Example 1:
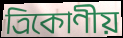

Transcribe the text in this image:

ত্ৰিকোণীয়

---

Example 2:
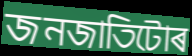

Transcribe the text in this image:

জনজাতিটোৰ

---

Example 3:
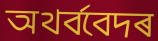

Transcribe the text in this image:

অথৰ্ববেদৰ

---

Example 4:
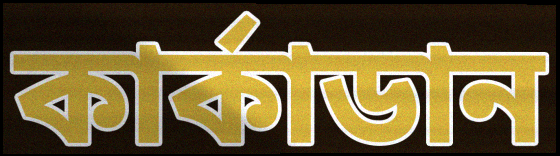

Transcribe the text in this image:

কাৰ্কাডান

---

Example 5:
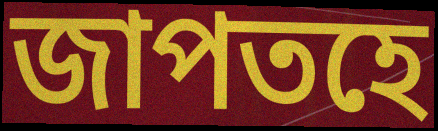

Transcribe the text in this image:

জাপতহে